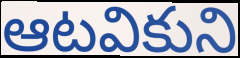
ఆటవికుని